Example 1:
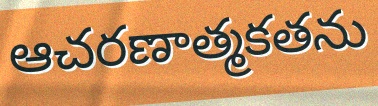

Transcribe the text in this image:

ఆచరణాత్మకతను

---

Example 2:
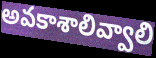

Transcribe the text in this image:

అవకాశాలివ్వాలి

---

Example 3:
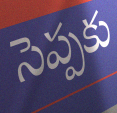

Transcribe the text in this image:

సెప్పకు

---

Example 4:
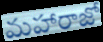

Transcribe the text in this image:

మహారాజో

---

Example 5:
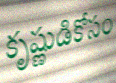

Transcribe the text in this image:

కృష్ణుడికోసం